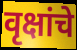
वृक्षांचे